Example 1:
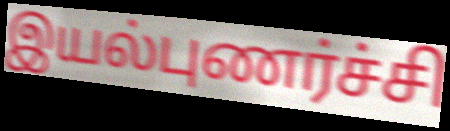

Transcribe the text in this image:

இயல்புணர்ச்சி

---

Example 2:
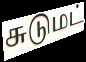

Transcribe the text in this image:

சுடுமட்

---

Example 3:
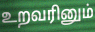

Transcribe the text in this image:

உறவரினும்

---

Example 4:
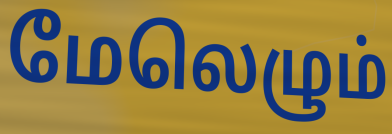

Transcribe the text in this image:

மேலெழும்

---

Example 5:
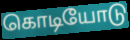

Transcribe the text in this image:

கொடியோடு